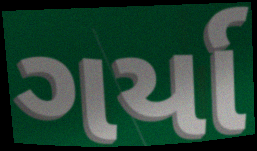
ગર્યા